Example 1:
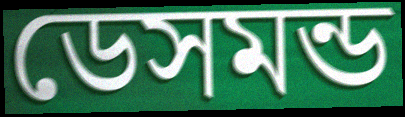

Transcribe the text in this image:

ডেসমন্ড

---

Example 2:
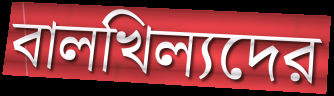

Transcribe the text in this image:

বালখিল্যদের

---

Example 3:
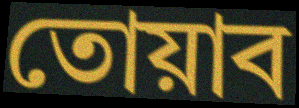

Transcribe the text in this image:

তোয়াব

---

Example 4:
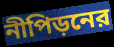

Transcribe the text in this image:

নীপিড়নের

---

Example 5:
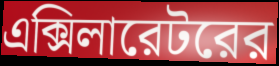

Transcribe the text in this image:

এক্সিলারেটরের